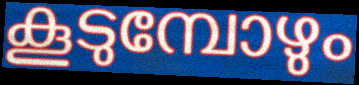
കൂടുമ്പോഴും